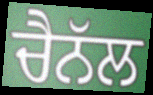
ਚੈਨੱਲ